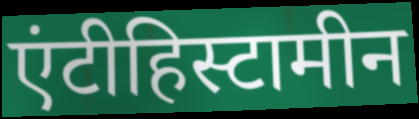
एंटीहिस्टामीन